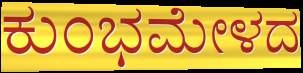
ಕುಂಭಮೇಳದ